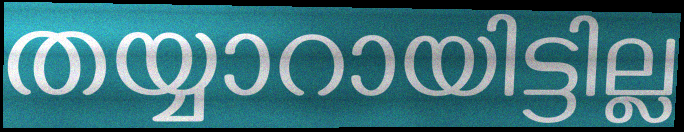
തയ്യാറായിട്ടില്ല